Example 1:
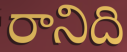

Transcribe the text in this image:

రానిది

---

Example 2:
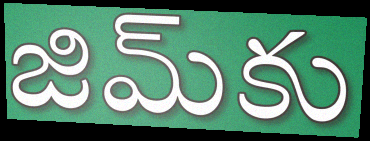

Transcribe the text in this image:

జిమ్‌కు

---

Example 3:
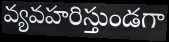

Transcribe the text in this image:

వ్యవహరిస్తుండగా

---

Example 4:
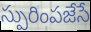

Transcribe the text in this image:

స్పురింపజేసే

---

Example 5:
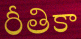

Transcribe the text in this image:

రీతికా